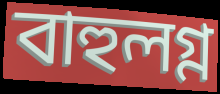
বাহুলগ্ন